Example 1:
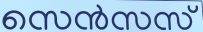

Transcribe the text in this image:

സെൻസസ്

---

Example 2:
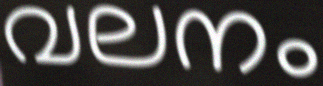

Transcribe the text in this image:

വലനം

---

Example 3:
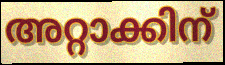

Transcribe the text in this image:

അറ്റാക്കിന്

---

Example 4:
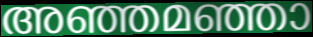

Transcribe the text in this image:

അഞ്ഞമഞ്ഞാ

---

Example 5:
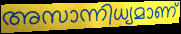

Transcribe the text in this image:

അസാന്നിധ്യമാണ്